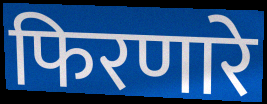
फिरणारे